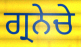
ਗ੍ਰਨੇਚੇ